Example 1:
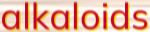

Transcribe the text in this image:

alkaloids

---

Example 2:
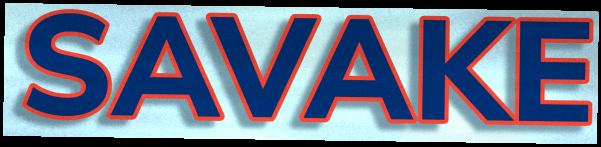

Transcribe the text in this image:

SAVAKE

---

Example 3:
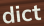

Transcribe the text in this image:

dict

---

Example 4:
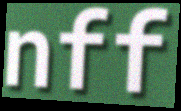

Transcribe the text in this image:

nff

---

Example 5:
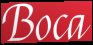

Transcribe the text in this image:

Boca